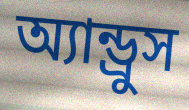
অ্যান্ড্রুস